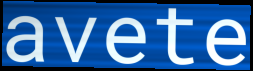
avete